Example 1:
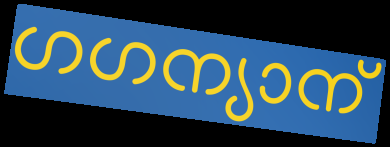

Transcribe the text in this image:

ഗഗന്യാന്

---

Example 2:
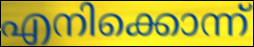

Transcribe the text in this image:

എനിക്കൊന്ന്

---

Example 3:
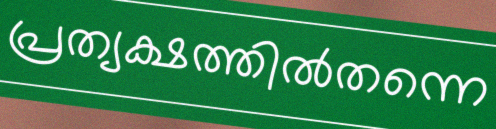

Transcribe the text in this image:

പ്രത്യക്ഷത്തിൽതന്നെ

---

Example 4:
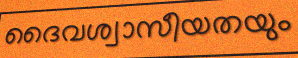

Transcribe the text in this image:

ദൈവശ്വാസീയതയും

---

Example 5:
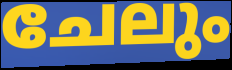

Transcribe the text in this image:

ചേലും